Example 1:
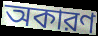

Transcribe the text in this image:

অকারণ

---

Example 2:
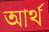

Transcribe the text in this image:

আর্থ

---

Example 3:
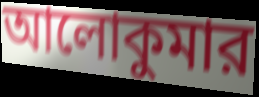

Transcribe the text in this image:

আলোকুমার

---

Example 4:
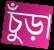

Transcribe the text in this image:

চুঁড়া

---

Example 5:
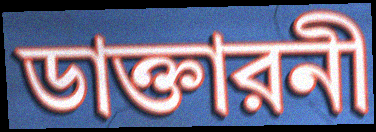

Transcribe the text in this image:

ডাক্তারনী